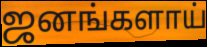
ஜனங்களாய்